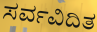
ಸರ್ವವಿದಿತ